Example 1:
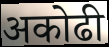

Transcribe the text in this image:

अकोढी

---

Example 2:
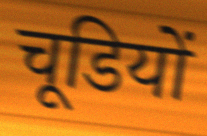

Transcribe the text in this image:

चूडियों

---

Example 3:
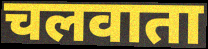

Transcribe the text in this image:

चलवाता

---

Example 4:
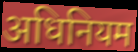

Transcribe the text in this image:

अधिनियम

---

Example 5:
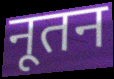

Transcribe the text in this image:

नूतन